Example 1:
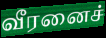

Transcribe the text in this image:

வீரனைச்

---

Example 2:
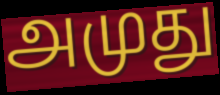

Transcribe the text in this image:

அமுது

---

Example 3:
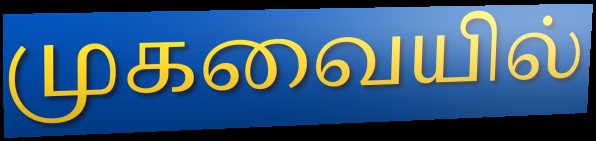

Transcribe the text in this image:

முகவையில்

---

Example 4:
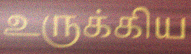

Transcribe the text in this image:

உருக்கிய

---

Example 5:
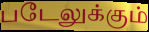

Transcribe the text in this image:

படேலுக்கும்